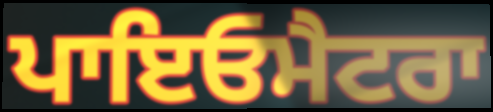
ਪਾਇਓਮੈਟਰਾ